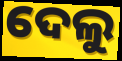
ଦେଲୁ